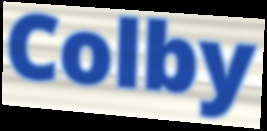
Colby